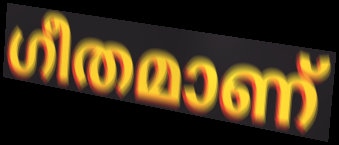
ഗീതമാണ്